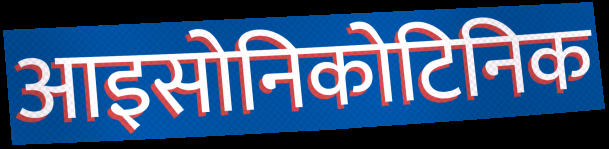
आइसोनिकोटिनिक